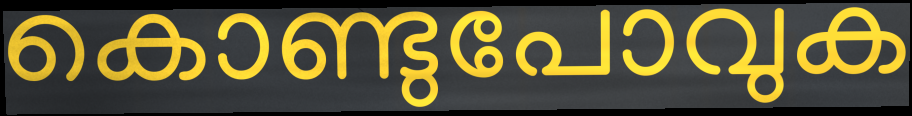
കൊണ്ടുപോവുക